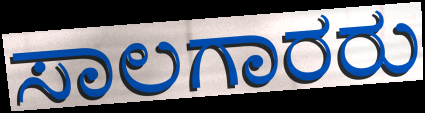
ಸಾಲಗಾರರು